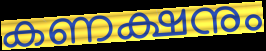
കണക്ഷനും